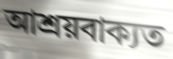
আশ্ৰয়বাক্যত